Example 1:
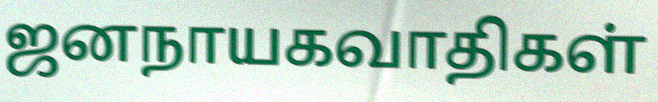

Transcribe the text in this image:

ஜனநாயகவாதிகள்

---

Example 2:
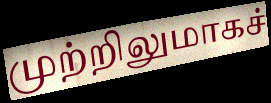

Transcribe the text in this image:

முற்றிலுமாகச்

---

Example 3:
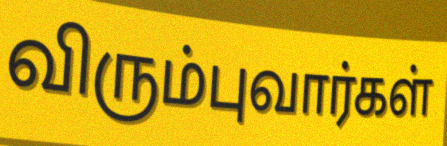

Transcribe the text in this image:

விரும்புவார்கள்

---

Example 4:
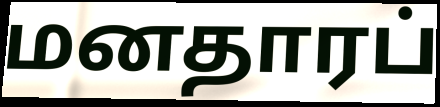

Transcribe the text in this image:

மனதாரப்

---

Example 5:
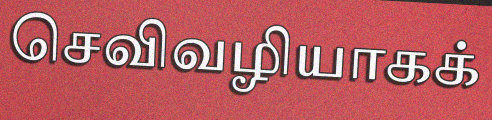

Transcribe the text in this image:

செவிவழியாகக்